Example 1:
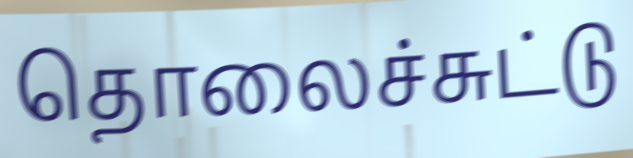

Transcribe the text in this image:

தொலைச்சுட்டு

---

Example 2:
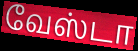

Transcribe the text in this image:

வேஸ்டா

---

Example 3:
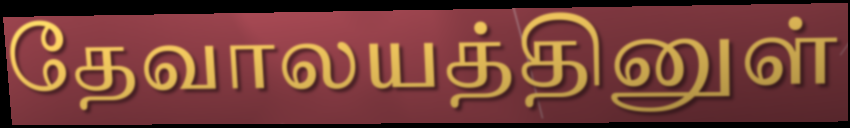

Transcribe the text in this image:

தேவாலயத்தினுள்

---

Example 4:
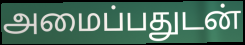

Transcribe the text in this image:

அமைப்பதுடன்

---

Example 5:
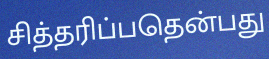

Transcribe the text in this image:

சித்தரிப்பதென்பது